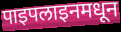
पाइपलाइनमधून